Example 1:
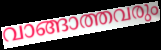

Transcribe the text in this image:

വാങ്ങാത്തവരും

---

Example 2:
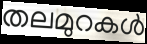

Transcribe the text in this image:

തലമുറകൾ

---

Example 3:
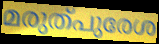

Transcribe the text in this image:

മരുത്പുരേശ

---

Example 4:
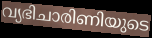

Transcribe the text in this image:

വ്യഭിചാരിണിയുടെ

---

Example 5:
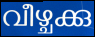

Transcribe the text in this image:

വീഴ്ചക്കു